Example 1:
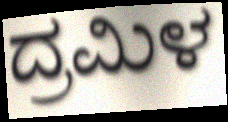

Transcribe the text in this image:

ದ್ರಮಿಳ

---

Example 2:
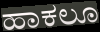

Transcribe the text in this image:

ಹಾಕಲೂ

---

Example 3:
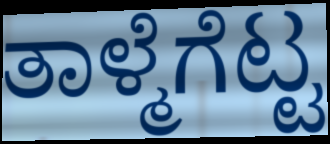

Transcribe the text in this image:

ತಾಳ್ಮೆಗೆಟ್ಟ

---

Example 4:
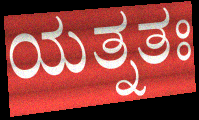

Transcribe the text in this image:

ಯತ್ನತಃ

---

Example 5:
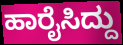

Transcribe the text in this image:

ಹಾರೈಸಿದ್ದು